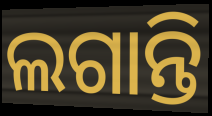
ଲଗାନ୍ତି